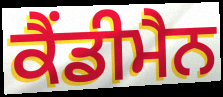
ਕੈਂਡੀਮੈਨ